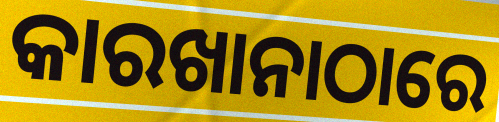
କାରଖାନାଠାରେ